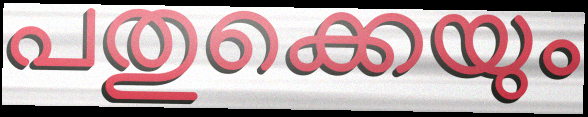
പതുക്കെയും